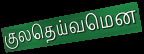
குலதெய்வமென